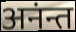
अनंन्त